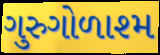
ગુરુગોળાશ્મ